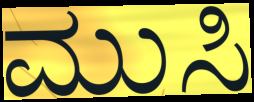
ಮುಸಿ